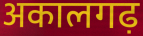
अकालगढ़